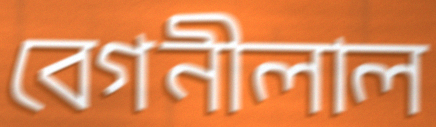
বেগনীলাল